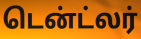
டென்ட்லர்